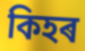
কিহৰ